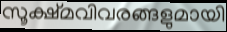
സൂക്ഷ്മവിവരങ്ങളുമായി